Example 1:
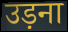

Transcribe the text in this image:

उड़ना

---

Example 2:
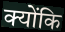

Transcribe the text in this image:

क्योंकि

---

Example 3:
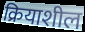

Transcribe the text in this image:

क्रियाशील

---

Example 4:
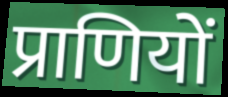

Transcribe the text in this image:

प्राणियों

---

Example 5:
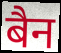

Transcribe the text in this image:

बैन